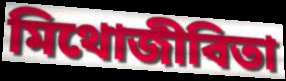
মিথোজীবিতা